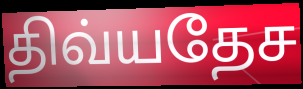
திவ்யதேச